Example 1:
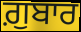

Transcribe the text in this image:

ਗ਼ੁਬਾਰ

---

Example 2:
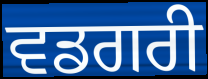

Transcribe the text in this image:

ਵਡਗਰੀ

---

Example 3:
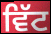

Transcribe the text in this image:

ਵਿੱਟ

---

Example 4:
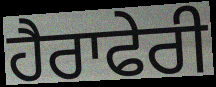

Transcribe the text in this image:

ਹੈਰਾਫੇਰੀ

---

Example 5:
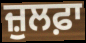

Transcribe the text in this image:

ਜ਼ੁਲਫ਼ਾ